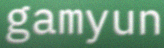
gamyun